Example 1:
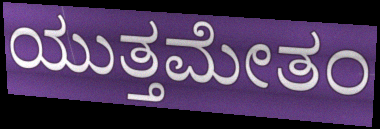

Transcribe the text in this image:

ಯುತ್ತಮೇತಂ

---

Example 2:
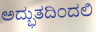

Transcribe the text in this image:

ಅದ್ಭುತದಿಂದಲಿ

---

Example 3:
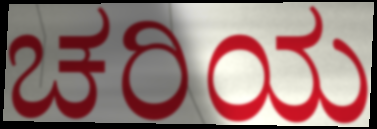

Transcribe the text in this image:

ಚರಿಯ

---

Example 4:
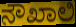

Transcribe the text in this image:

ನೌಖಾಲಿ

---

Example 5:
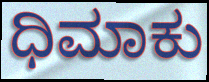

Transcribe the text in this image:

ಧಿಮಾಕು